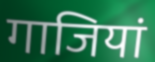
गाजियां